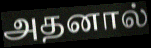
அதனால்